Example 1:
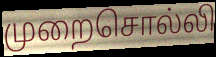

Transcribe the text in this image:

முறைசொல்லி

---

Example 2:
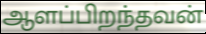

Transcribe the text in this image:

ஆளப்பிறந்தவன்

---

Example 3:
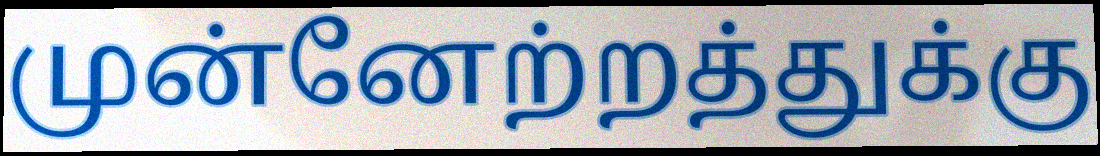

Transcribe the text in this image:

முன்னேற்றத்துக்கு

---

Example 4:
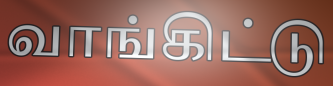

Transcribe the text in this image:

வாங்கிட்டு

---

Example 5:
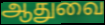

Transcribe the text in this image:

ஆதுவை